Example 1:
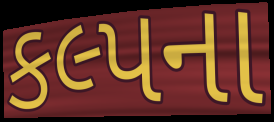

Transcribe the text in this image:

કલ્પના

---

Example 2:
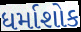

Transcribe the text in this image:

ધર્માશોક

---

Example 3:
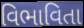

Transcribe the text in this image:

વિભાવિતા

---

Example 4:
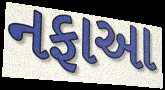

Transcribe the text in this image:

નફાઆ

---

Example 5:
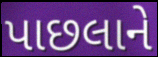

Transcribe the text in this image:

પાછલાને